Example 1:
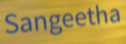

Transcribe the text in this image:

Sangeetha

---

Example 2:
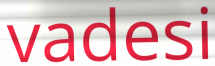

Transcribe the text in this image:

vadesi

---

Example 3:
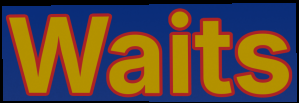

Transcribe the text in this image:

Waits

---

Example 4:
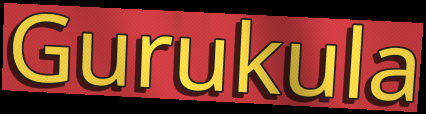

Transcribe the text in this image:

Gurukula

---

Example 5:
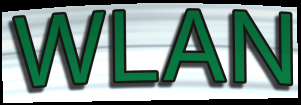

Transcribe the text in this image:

WLAN